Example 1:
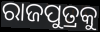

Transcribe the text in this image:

ରାଜପୁତ୍ରକୁ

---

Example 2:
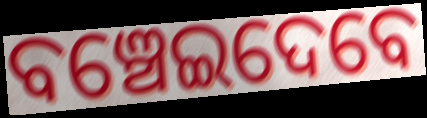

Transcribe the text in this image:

ବଞ୍ଚେଇଦେବେ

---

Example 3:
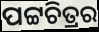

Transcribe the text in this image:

ପଟ୍ଟଚିତ୍ରର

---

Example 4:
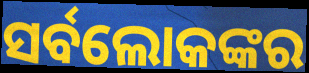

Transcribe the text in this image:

ସର୍ବଲୋକଙ୍କର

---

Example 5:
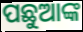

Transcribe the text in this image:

ପଛୁଆଙ୍କ